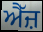
ਐੱਜ਼